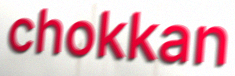
chokkan